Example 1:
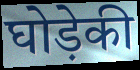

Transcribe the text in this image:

घोड़ेकी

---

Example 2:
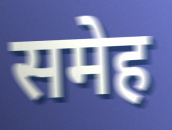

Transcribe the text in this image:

समेह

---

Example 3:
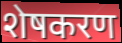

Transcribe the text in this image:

शेषकरण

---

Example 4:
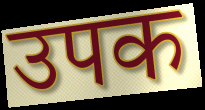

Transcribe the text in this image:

उपक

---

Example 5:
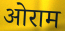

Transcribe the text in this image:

ओराम